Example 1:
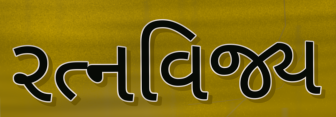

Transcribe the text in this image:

રત્નવિજ્ય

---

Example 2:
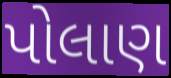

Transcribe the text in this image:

પોલાણ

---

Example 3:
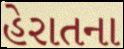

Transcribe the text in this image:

હેરાતના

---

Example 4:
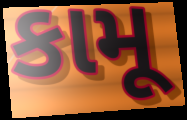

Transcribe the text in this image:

કામૂ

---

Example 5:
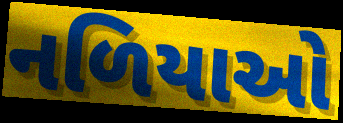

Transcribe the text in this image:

નળિયાઓ